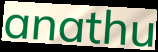
anathu